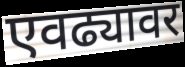
एवढ्यावर